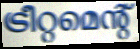
ട്രീറ്റമെന്റ്